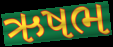
ઋષભ